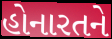
હોનારતને